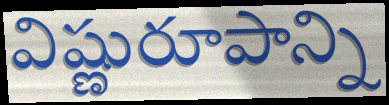
విష్ణురూపాన్ని